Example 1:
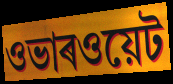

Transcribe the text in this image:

ওভাৰওয়েট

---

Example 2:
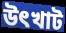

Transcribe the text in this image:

উৎখাট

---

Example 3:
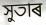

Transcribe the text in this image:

সুতাৰ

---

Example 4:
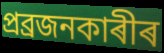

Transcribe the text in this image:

প্ৰব্ৰজনকাৰীৰ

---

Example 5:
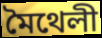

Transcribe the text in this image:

মৈথেলী